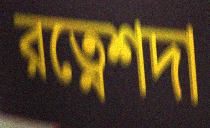
রত্নেশদা